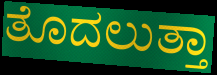
ತೊದಲುತ್ತಾ